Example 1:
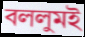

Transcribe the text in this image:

বললুমই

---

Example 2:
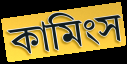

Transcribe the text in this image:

কামিংস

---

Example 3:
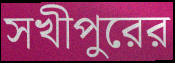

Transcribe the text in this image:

সখীপুরের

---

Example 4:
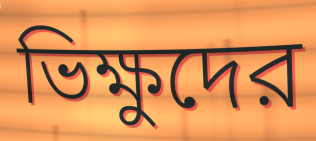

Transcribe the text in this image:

ভিক্ষুদের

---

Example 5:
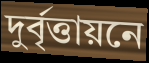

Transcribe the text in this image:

দুর্বৃত্তায়নে